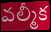
వల్మీక